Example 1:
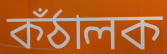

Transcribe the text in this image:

কঁঠালক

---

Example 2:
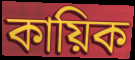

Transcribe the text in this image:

কায়িক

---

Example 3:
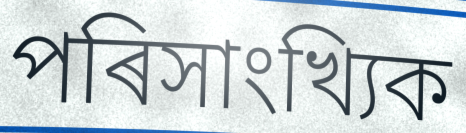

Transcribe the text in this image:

পৰিসাংখ্যিক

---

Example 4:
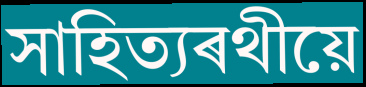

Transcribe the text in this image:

সাহিত্যৰথীয়ে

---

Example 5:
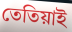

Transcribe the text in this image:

তেতিয়াই